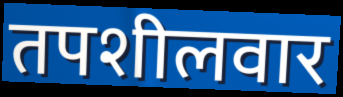
तपशीलवार